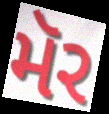
મૅર